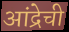
आंद्रेची